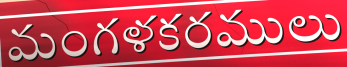
మంగళకరములు